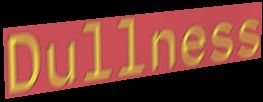
Dullness